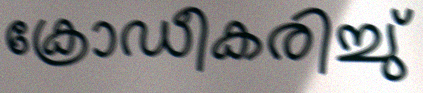
ക്രോഡീകരിച്ചു്